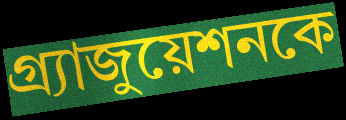
গ্র্যাজুয়েশনকে